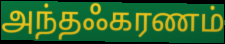
அந்தஃகரணம்